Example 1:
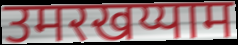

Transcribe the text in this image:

उमरखय्याम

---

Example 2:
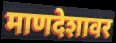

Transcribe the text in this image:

माणदेशावर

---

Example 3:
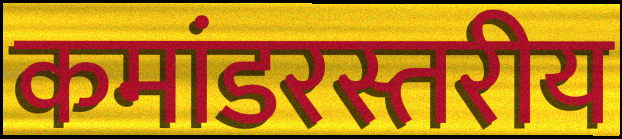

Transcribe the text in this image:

कमांडरस्तरीय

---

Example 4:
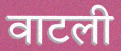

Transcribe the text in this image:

वाटली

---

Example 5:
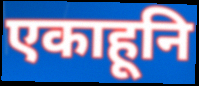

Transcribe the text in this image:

एकाहूनि